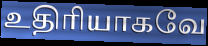
உதிரியாகவே